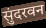
सुंदरवन